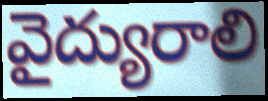
వైద్యురాలి